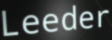
Leeder